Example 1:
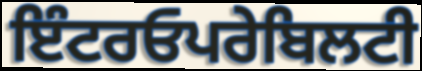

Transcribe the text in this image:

ਇੰਟਰਓਪਰੇਬਿਲਟੀ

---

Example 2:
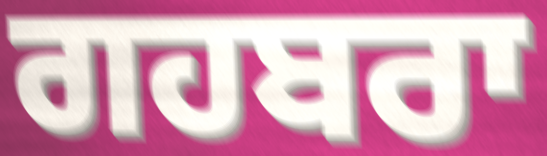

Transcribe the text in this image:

ਗਹਬਰਾ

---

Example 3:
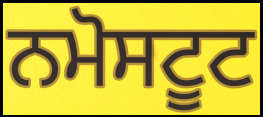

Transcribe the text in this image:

ਨਮੋਸਟੂਟ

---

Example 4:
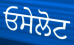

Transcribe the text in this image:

ਓਸੇਲੋਟ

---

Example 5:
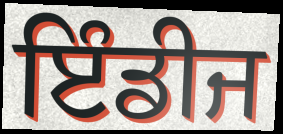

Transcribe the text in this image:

ਇੰਡੀਜ